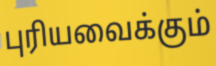
புரியவைக்கும்